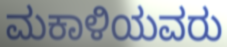
ಮಕಾಳಿಯವರು